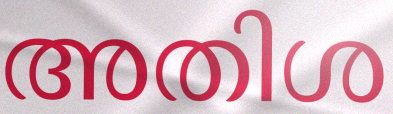
അതിശ